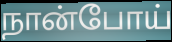
நான்போய்